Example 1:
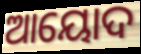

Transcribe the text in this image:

ଆୟୋଦ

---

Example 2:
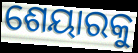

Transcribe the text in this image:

ଶେୟାରକୁ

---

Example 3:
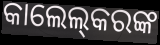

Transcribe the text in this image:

କାଲେଲ୍‌କରଙ୍କ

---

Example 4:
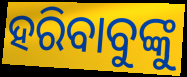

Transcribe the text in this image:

ହରିବାବୁଙ୍କୁ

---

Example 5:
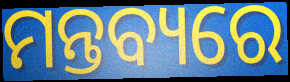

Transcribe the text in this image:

ମନ୍ତବ୍ୟରେ